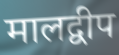
मालद्वीप